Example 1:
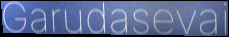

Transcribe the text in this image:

Garudasevai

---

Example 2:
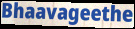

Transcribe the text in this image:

Bhaavageethe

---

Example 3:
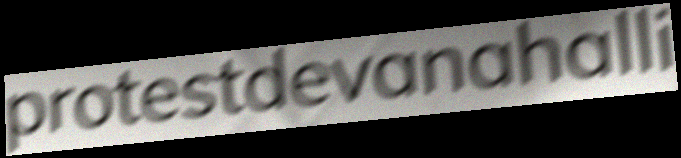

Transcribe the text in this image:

protestdevanahalli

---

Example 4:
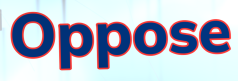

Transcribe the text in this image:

Oppose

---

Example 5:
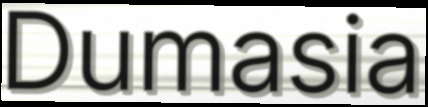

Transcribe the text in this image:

Dumasia